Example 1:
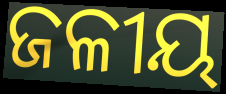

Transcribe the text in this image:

ଜଳୀୟ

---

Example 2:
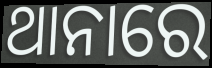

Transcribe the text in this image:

ଥାନାରେ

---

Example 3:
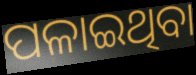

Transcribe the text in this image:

ପଳାଇଥିବା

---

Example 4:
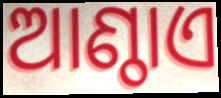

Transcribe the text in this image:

ଆଣ୍ଠାଏ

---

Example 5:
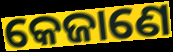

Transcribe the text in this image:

କେଜାଣେ